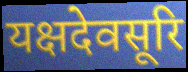
यक्षदेवसूरि